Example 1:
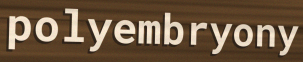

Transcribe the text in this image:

polyembryony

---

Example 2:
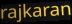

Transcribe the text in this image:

rajkaran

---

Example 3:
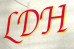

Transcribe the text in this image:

LDH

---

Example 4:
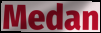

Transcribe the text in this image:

Medan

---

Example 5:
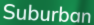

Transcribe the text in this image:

Suburban